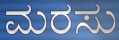
ಮರಸು